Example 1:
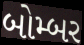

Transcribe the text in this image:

બોમ્બર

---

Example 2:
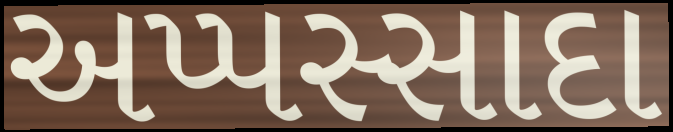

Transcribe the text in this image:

અપ્પસ્સાદા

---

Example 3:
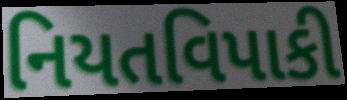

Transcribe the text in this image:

નિયતવિપાકી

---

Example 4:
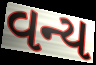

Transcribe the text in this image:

વન્ય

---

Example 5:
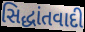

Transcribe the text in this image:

સિદ્ધાંતવાદી